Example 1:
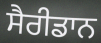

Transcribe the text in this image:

ਸੈਰੀਡਾਨ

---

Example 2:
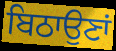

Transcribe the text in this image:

ਬਿਠਾਉਣਾਂ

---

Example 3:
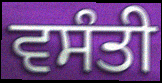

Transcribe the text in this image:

ਵਸੰਤੀ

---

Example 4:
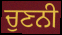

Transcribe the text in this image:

ਚੁਣਨੀ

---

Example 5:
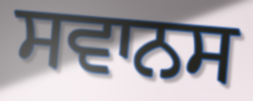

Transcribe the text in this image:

ਸਵਾਨਸ